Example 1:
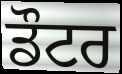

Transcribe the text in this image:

ਡੌਟਰ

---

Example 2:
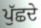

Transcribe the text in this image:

ਪੁੱਛਦੇ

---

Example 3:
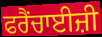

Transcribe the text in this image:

ਫਰੈਂਚਾਈਜ਼ੀ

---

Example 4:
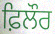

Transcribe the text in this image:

ਫ਼ਿਲੌਰ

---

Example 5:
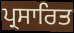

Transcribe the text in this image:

ਪ੍ਰਸਾਰਿਤ